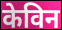
केविन